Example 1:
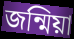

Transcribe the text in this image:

জন্মিয়া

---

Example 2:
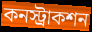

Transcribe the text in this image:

কনস্ট্রাকশন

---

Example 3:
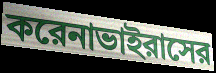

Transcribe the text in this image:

করেনাভাইরাসের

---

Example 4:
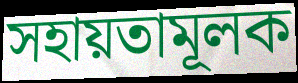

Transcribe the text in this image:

সহায়তামূলক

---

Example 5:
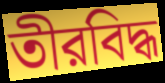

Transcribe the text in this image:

তীরবিদ্ধ